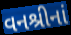
વનશ્રીનાં